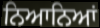
ਨਿਆਨਿਆਂ